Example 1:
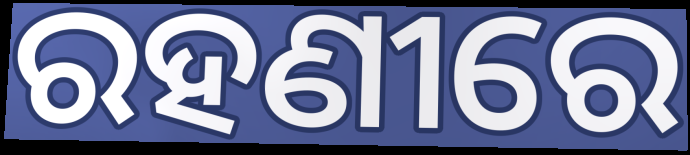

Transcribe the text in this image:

ରହଣୀରେ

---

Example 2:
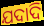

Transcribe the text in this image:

ଯଦାଦି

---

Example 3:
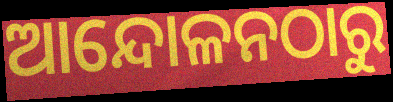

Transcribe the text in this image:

ଆନ୍ଦୋଳନଠାରୁ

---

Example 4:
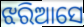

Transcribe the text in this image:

ଝରିଆସେ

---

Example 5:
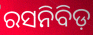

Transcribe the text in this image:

ରସନିବିଡ଼